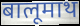
बालूमाथ